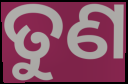
ତୁଣ